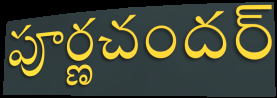
పూర్ణచందర్